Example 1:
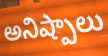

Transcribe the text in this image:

అనిష్పాలు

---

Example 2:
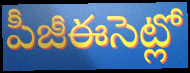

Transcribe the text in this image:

పీజీఈసెట్లో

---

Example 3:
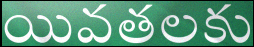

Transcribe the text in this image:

యివతలకు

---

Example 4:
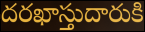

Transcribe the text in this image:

దరఖాస్తుదారుకి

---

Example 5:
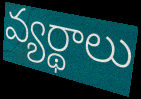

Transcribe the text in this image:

వ్యర్థాలు